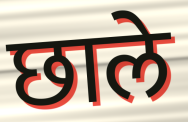
छाले